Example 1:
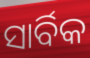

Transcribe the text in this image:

ସାର୍ବିକ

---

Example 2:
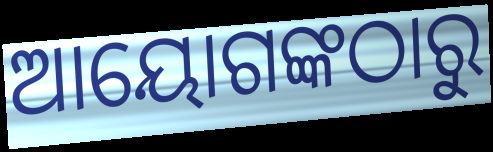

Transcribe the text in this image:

ଆୟୋଗଙ୍କଠାରୁ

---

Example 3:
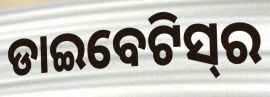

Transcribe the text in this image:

ଡାଇବେଟିସ୍‌ର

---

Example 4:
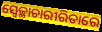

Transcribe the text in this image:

ସ୍ଵେଚ୍ଛାଚାରୀରିତାରେ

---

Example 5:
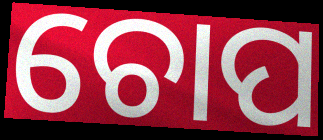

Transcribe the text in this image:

ଚୋପ